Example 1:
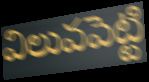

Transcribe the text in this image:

విలువపెట్టి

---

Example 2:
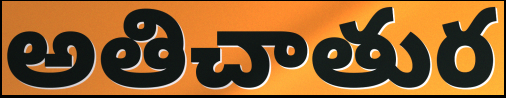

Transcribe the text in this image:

అతిచాతుర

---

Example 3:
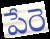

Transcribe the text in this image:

పేరె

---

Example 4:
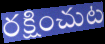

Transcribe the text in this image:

రక్షించుట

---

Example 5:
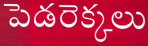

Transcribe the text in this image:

పెడరెక్కలు